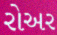
રોઅર